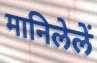
मानिलेलें